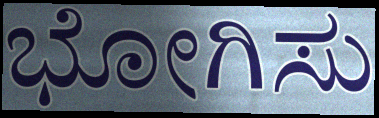
ಭೋಗಿಸು